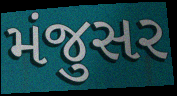
મંજુસર